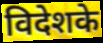
विदेशके